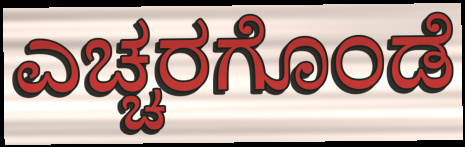
ಎಚ್ಚರಗೊಂಡೆ